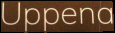
Uppena